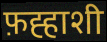
फ़ह्हाशी